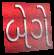
બેગે